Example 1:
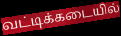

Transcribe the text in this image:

வட்டிக்கடையில்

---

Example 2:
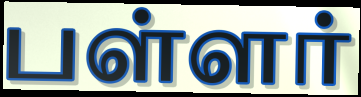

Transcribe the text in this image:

பள்ளர்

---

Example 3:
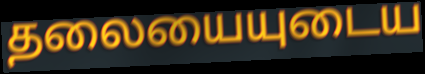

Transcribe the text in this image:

தலையையுடைய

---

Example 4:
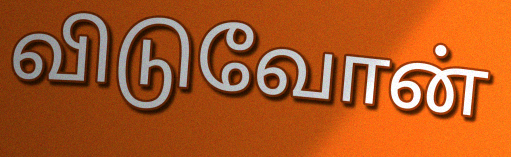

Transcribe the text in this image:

விடுவோன்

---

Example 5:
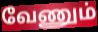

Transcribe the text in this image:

வேணும்